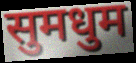
सुमधुम